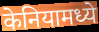
केनियामध्ये